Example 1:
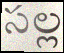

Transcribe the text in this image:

సల్ల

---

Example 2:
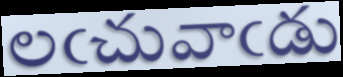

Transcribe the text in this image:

లఁచువాఁడు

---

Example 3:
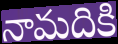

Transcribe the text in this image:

నామదికి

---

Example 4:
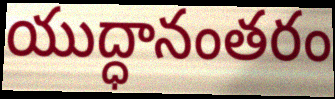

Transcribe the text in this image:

యుద్ధానంతరం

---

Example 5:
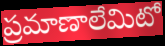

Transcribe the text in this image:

ప్రమాణాలేమిటో